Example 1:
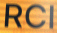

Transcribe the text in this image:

RCl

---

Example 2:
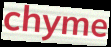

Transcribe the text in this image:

chyme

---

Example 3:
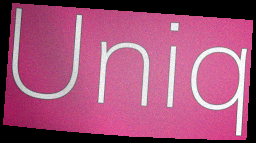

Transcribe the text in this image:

Uniq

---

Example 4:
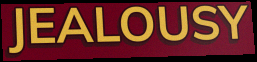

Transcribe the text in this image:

JEALOUSY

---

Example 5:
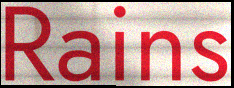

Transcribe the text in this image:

Rains